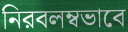
নিরবলম্বভাবে